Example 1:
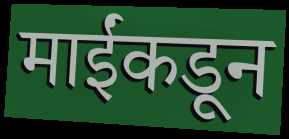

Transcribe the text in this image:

माईंकडून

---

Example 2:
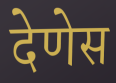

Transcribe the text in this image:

देणेस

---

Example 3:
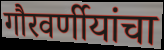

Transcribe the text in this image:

गौरवर्णीयांचा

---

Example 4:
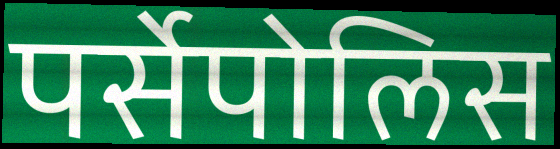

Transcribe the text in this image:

पर्सेपोलिस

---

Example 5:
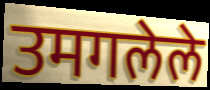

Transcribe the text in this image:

उमगलेले